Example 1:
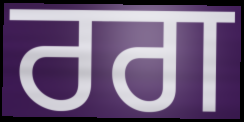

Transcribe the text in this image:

ਰਗ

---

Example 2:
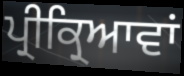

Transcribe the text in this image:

ਪ੍ਰੀਕ੍ਰਿਆਵਾਂ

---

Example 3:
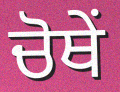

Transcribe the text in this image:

ਚੋਥੇਂ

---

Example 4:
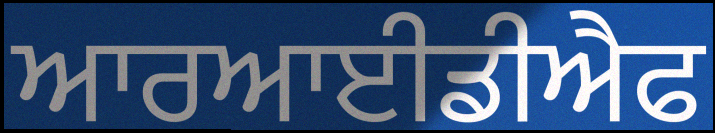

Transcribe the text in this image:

ਆਰਆਈਡੀਐਫ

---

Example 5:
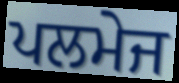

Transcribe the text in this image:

ਪਲਮੇਜ